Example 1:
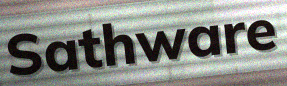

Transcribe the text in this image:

Sathware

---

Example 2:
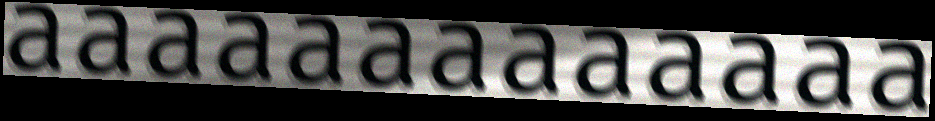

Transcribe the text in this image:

aaaaaaaaaaaaa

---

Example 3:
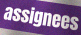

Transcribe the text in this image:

assignees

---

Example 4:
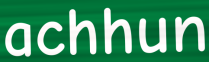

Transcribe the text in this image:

achhun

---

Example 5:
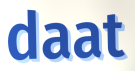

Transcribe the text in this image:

daat